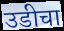
उडीचा